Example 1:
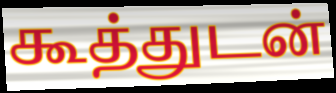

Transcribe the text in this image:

கூத்துடன்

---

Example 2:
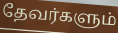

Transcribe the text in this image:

தேவர்களும்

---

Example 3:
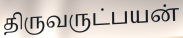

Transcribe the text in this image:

திருவருட்பயன்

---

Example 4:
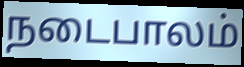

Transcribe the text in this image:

நடைபாலம்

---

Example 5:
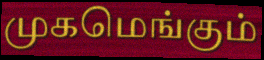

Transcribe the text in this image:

முகமெங்கும்